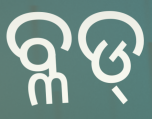
ବ୍ଳଡ୍